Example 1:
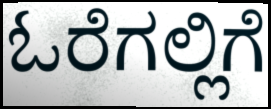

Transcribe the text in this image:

ಓರೆಗಲ್ಲಿಗೆ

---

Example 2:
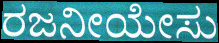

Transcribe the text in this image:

ರಜನೀಯೇಸು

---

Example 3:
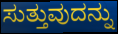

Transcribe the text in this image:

ಸುತ್ತುವುದನ್ನು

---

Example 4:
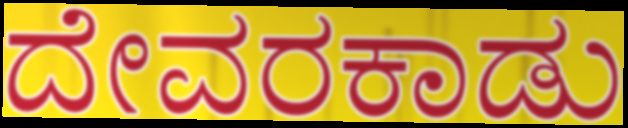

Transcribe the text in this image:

ದೇವರಕಾಡು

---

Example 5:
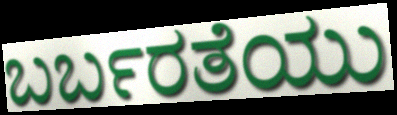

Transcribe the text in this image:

ಬರ್ಬರತೆಯು